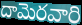
దామెరవారి